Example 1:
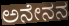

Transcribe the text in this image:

ಅನೇನನ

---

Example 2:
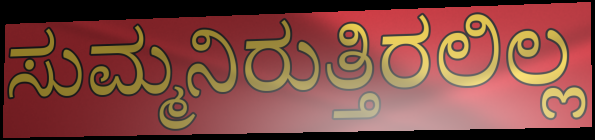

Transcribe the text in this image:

ಸುಮ್ಮನಿರುತ್ತಿರಲಿಲ್ಲ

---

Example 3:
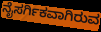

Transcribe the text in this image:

ನೈಸರ್ಗಿಕವಾಗಿರುವ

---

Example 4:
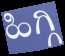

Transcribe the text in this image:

ಹಿಗ್ಗಿ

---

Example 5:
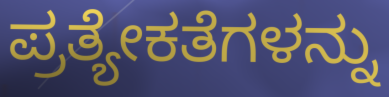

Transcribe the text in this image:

ಪ್ರತ್ಯೇಕತೆಗಳನ್ನು